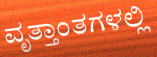
ವೃತ್ತಾಂತಗಳಲ್ಲಿ